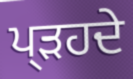
ਪ੍ੜਹਦੇ